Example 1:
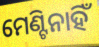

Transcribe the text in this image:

ମେଣ୍ଟିନାହିଁ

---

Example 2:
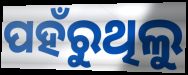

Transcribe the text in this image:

ପହଁରୁଥିଲୁ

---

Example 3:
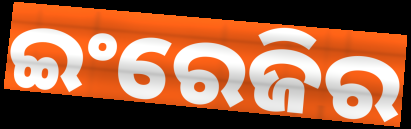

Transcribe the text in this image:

ଇଂରେଜିର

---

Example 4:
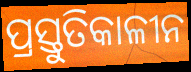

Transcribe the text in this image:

ପ୍ରସ୍ତୁତିକାଳୀନ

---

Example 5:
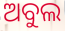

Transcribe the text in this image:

ଅବୁଲ